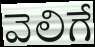
వెలిగే